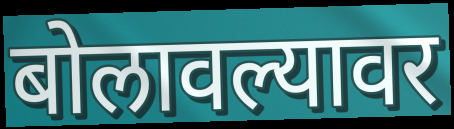
बोलावल्यावर